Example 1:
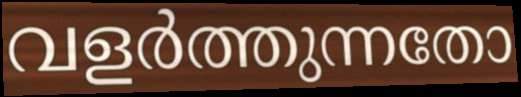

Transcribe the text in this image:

വളർത്തുന്നതോ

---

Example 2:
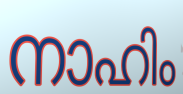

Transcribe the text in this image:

നാഹിം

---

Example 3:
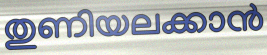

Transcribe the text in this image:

തുണിയലക്കാൻ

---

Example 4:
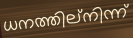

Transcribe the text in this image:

ധനത്തില്നിന്ന്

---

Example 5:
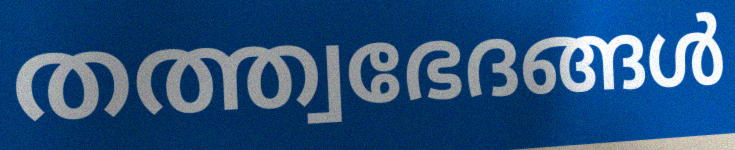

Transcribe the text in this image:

തത്ത്വഭേദങ്ങൾ